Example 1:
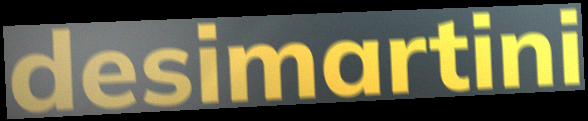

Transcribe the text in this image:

desimartini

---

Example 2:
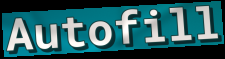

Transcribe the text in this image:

Autofill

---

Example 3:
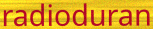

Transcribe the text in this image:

radioduran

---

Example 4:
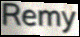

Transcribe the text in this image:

Remy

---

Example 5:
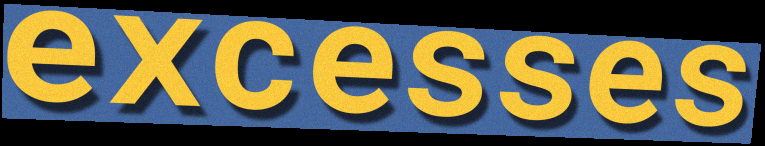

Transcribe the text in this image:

excesses